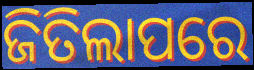
ଜିତିଲାପରେ